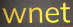
wnet